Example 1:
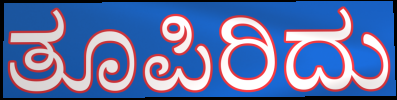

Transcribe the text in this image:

ತೂಪಿರಿದು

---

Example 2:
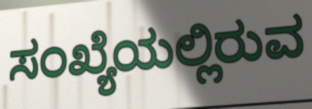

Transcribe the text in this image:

ಸಂಖ್ಯೆಯಲ್ಲಿರುವ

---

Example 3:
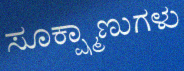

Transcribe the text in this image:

ಸೂಕ್ಷ್ಮಾಣುಗಳು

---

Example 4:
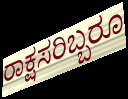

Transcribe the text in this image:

ರಾಕ್ಷಸರಿಬ್ಬರೂ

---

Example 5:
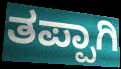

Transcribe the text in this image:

ತಪ್ಪಾಗಿ